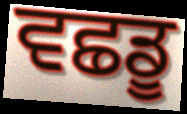
ਵਛਡੂ